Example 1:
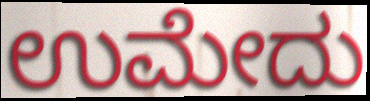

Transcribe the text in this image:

ಉಮೇದು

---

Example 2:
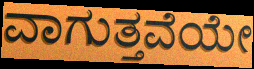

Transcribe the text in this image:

ವಾಗುತ್ತವೆಯೇ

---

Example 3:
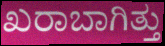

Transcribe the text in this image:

ಖರಾಬಾಗಿತ್ತು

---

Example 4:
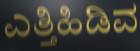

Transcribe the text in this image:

ಎತ್ತಿಹಿಡಿವ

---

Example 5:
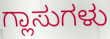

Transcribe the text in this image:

ಗ್ಲಾಸುಗಳು